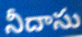
నీదాసు